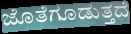
ಜೊತೆಗೂಡುತ್ತದೆ